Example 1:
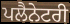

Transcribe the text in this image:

ਪਲੈਨੇਟਰੀ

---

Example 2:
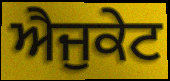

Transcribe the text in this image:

ਐਜੁਕੇਟ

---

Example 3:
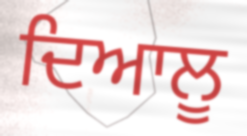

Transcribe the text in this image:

ਦਿਆਲੂ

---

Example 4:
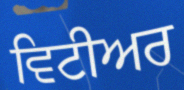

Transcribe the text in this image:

ਵਿਟੀਅਰ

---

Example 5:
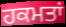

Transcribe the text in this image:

ਹਕਮਤਾਂ